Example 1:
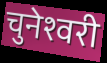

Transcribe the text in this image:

चुनेश्वरी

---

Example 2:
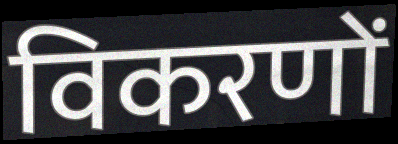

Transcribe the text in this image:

विकरणों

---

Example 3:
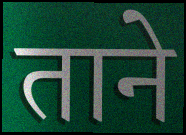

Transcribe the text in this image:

ताने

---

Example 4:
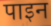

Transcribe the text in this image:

पाइन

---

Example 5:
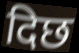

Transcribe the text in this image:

दिछ